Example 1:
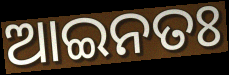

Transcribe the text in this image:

ଆଇନତଃ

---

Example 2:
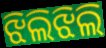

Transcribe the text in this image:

ଝିଲିଝିଲି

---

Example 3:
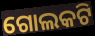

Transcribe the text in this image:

ଗୋଲକଟି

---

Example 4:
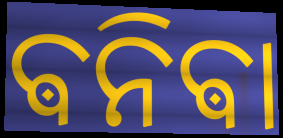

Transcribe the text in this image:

ଵନିଵା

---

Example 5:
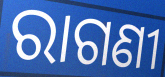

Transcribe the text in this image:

ରାଗଣୀ